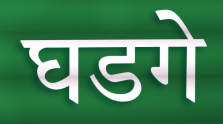
घडगे